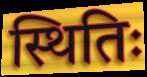
स्थितिः